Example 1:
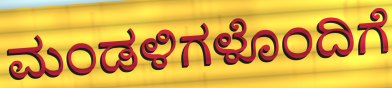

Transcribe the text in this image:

ಮಂಡಳಿಗಳೊಂದಿಗೆ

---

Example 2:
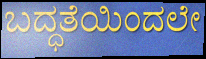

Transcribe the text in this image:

ಬದ್ಧತೆಯಿಂದಲೇ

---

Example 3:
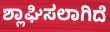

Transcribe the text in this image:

ಶ್ಲಾಘಿಸಲಾಗಿದೆ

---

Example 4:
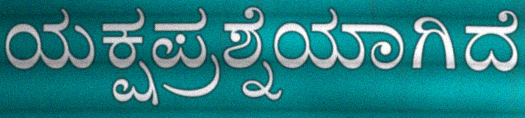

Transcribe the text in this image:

ಯಕ್ಷಪ್ರಶ್ನೆಯಾಗಿದೆ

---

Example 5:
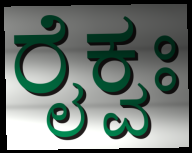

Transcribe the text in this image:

ರೈಕ್ವಃ